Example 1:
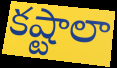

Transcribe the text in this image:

కష్టాలా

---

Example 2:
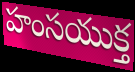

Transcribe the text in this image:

హంసయుక్త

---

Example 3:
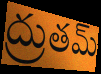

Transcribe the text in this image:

ద్రుతమ్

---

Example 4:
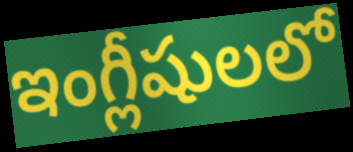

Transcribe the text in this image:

ఇంగ్లీషులలో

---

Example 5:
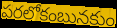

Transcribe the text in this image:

పరలోకంబునకుం